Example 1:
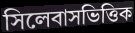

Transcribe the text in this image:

সিলেবাসভিত্তিক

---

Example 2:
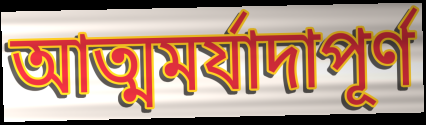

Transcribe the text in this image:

আত্মমর্যাদাপূর্ণ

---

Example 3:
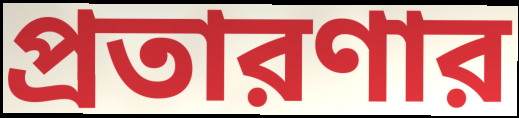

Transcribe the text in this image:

প্রতারণার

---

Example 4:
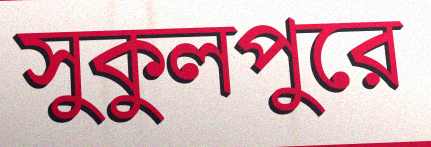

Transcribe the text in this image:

সুকুলপুরে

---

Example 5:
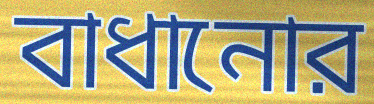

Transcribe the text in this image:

বাধানোর